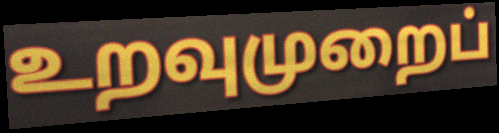
உறவுமுறைப்